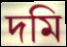
দমি